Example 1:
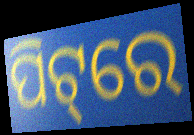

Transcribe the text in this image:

ପିଟ୍‌ରେ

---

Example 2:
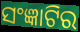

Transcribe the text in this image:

ସଂଜ୍ଞାଟିର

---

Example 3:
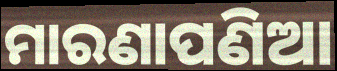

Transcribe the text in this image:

ମାରଣାପଣିଆ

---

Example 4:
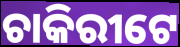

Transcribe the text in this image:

ଚାକିରୀଟେ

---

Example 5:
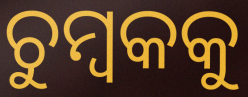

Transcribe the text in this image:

ଚୁମ୍ବକକୁ